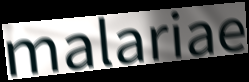
malariae